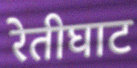
रेतीघाट